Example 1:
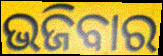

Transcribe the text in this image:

ଭଜିବାର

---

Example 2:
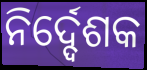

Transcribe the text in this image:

ନିର୍ଦ୍ଦେଶକ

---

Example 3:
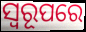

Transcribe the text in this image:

ସ୍ଵରୂପରେ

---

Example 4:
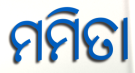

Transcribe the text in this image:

ମମିତା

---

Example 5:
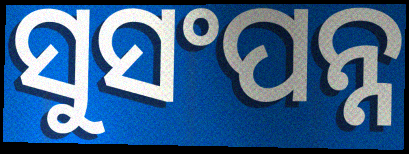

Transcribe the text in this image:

ସୁସଂପନ୍ନ